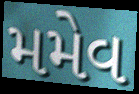
મમેવ